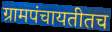
ग्रामपंचायतीतच